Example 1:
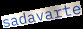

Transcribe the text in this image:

sadavarte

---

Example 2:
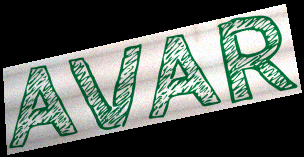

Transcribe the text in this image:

AVAR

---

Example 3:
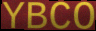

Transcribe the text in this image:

YBCO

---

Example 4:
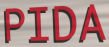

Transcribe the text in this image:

PIDA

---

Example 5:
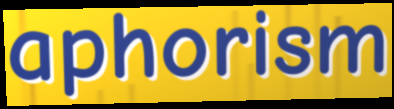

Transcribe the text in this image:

aphorism